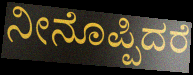
ನೀನೊಪ್ಪಿದರೆ